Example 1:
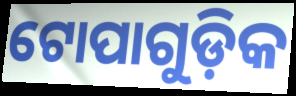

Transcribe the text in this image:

ଟୋପାଗୁଡ଼ିକ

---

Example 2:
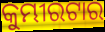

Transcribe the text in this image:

କୁମ୍ଭୀରଟାର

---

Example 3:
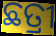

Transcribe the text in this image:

ଛତ୍ରୀ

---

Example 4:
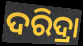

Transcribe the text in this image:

ଦରିଦ୍ରା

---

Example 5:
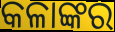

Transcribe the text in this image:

କଳାଙ୍କର